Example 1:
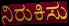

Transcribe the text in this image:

ನಿರುಕಿಸು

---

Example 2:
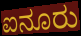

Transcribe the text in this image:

ಐನೂರು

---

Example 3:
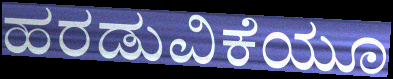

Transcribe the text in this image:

ಹರಡುವಿಕೆಯೂ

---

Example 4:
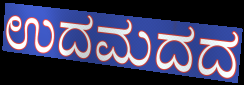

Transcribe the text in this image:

ಉದಮದದ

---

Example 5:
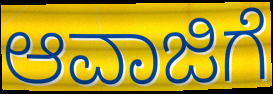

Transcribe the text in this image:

ಆವಾಜಿಗೆ